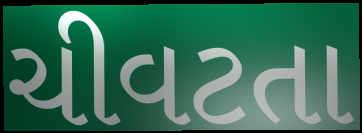
ચીવટતા